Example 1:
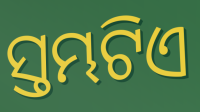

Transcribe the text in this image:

ସ୍ତମ୍ଭଟିଏ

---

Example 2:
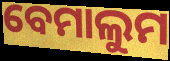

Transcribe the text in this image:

ବେମାଲୁମ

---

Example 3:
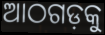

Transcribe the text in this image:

ଆଠଗଡ଼କୁ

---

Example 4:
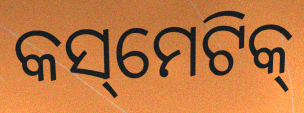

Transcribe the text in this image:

କସ୍‌ମେଟିକ୍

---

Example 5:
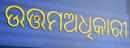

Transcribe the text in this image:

ଉତ୍ତମଅଧିକାରୀ